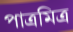
পাত্রমিত্র